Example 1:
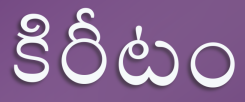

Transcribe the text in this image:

కిరీటం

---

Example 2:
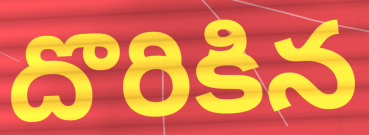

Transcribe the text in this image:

దొరికిన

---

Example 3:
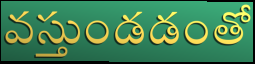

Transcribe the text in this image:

వస్తుండడంతో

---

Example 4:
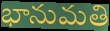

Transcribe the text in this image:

భానుమతి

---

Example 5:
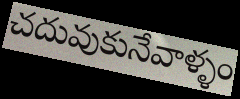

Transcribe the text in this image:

చదువుకునేవాళ్ళం